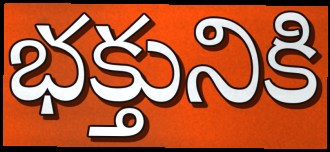
భక్తునికి